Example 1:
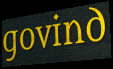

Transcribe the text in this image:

govind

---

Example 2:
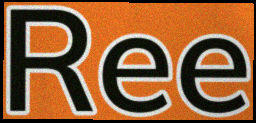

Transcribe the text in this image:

Ree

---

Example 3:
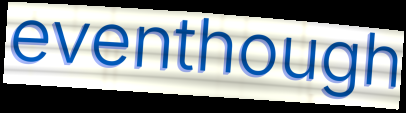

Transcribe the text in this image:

eventhough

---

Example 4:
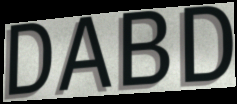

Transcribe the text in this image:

DABD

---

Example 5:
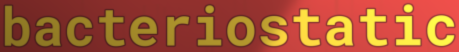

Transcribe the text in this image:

bacteriostatic